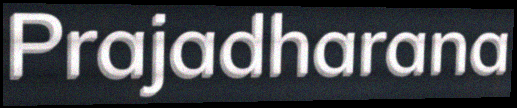
Prajadharana